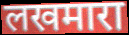
लखमारा